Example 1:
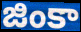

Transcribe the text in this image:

జింకా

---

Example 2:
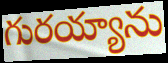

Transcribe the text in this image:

గురయ్యాను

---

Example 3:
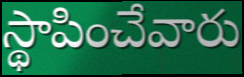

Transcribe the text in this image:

స్థాపించేవారు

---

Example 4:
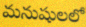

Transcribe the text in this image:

మనుషులలో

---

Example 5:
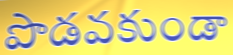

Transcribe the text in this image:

పొడవకుండా